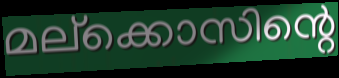
മല്ക്കൊസിന്റെ